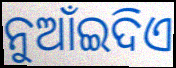
ନୁଆଁଇଦିଏ